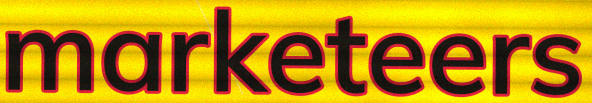
marketeers